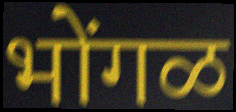
भोंगळ